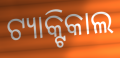
ଟ୍ୟାକ୍ଟିକାଲ